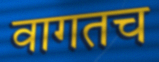
वागतच